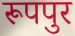
रूपपुर